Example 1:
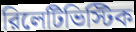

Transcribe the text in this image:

রিলেটিভিস্টিক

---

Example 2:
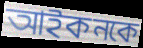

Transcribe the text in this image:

আইকনকে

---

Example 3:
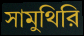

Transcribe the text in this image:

সামুথিরি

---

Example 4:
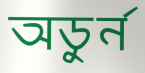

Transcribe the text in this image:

অডুর্ন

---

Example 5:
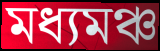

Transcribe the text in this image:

মধ্যমঞ্চ